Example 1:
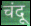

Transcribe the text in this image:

चंदू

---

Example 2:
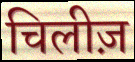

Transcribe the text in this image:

चिलीज़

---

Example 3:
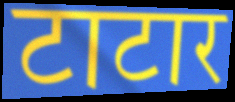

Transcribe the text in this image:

टाटार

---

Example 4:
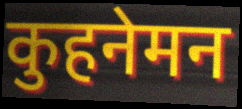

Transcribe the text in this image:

कुहनेमन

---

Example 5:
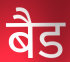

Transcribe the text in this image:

बैड